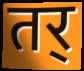
तर्